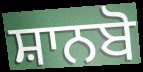
ਸ਼ਾਨਬੋ